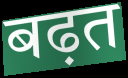
बढ़त